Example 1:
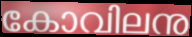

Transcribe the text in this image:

കോവിലനു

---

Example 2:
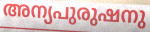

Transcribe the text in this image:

അന്യപുരുഷനു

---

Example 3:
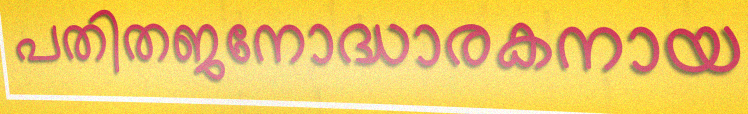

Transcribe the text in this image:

പതിതജനോദ്ധാരകനായ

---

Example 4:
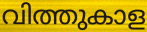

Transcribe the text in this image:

വിത്തുകാള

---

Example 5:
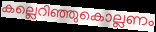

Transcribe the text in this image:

കല്ലെറിഞ്ഞുകൊല്ലണം